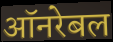
ऑनरेबल